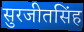
सुरजीतसिंह